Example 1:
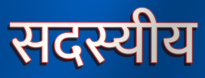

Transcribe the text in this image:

सदस्‍यीय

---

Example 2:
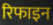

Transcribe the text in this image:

रिफाइन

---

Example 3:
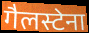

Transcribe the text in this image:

गैलस्टेना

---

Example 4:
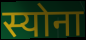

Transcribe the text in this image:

स्योना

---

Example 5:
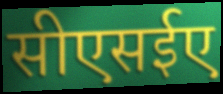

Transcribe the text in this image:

सीएसईए